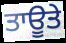
ਤਾਊਤੇ